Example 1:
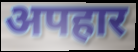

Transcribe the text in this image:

अपहार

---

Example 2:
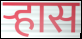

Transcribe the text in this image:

ऱ्हास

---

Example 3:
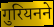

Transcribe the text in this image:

गुरियनने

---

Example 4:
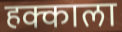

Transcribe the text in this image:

हक्काला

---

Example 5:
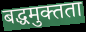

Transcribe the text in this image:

बद्धमुक्तता